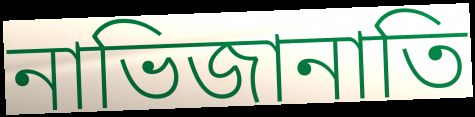
নাভিজানাতি